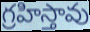
గ్రహిస్తావు